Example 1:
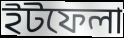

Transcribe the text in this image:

ইটফেলা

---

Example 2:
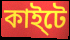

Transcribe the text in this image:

কাই্টে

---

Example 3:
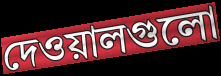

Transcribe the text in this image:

দেওয়ালগুলো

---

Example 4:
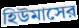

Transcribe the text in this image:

হিউমাসের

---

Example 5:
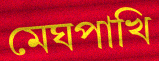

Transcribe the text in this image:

মেঘপাখি